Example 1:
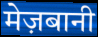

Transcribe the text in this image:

मेज़बानी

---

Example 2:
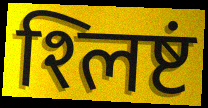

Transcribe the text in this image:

श्लिष्टं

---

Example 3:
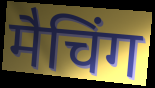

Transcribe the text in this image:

मैचिंग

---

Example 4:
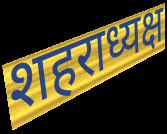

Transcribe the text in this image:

शहराध्यक्ष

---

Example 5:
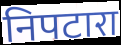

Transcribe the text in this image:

निपटारा